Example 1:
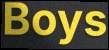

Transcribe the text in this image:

Boys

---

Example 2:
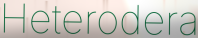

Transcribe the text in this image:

Heterodera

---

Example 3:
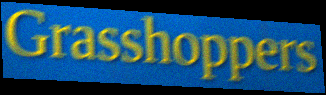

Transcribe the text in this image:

Grasshoppers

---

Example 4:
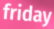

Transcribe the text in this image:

friday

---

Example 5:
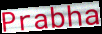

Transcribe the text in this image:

Prabha